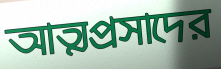
আত্মপ্রসাদের